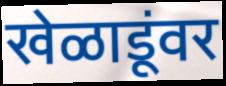
खेळाडूंवर